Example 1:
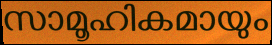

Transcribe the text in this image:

സാമൂഹികമായും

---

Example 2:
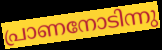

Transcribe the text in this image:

പ്രാണനോടിന്നു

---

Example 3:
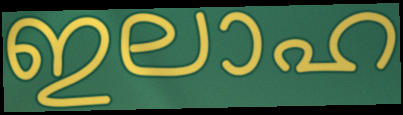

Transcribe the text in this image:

ഇലാഹ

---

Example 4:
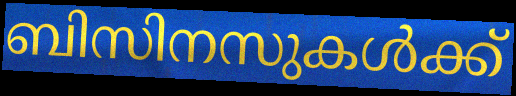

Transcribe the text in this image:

ബിസിനസുകൾക്ക്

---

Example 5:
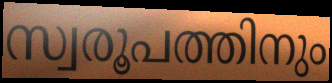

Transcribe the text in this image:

സ്വരൂപത്തിനും